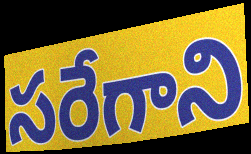
సరేగాని